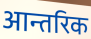
आन्तरिक